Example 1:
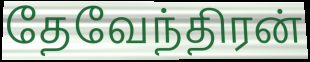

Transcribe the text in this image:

தேவேந்திரன்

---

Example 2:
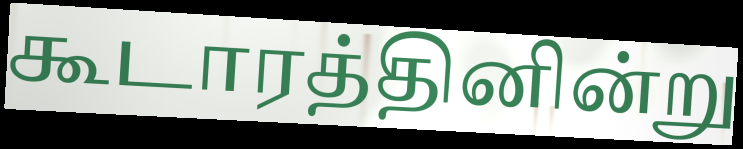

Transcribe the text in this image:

கூடாரத்தினின்று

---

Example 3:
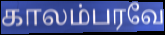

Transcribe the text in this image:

காலம்பரவே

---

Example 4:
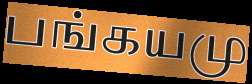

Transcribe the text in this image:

பங்கயமு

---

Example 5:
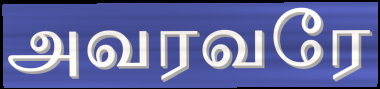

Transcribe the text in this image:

அவரவரே